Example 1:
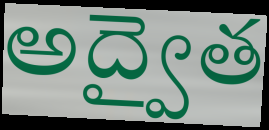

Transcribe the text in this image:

అద్వైత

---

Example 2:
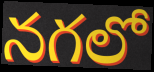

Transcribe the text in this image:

నగలో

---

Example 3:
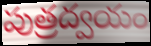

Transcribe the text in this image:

పుత్రద్వయం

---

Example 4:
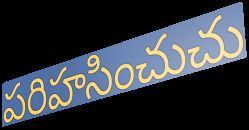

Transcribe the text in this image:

పరిహసించుచు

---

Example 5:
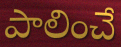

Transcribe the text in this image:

పాలించే